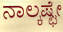
ನಾಲ್ಕಷ್ಟೇ